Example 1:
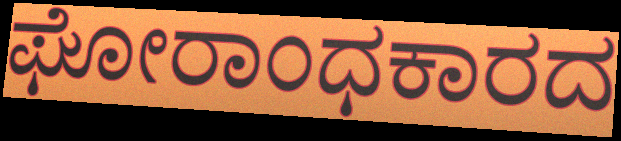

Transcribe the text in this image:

ಘೋರಾಂಧಕಾರದ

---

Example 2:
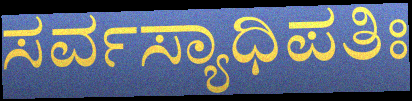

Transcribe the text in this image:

ಸರ್ವಸ್ಯಾಧಿಪತಿಃ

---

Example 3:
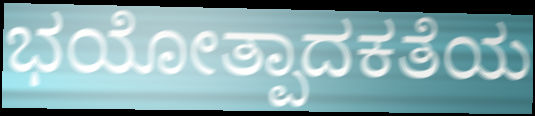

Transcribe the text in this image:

ಭಯೋತ್ಪಾದಕತೆಯ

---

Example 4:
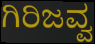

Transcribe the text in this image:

ಗಿರಿಜವ್ವ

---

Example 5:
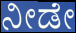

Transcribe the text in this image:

ನೀಡೇ